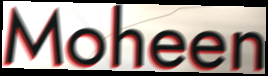
Moheen